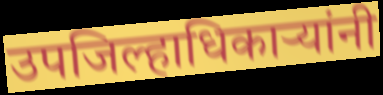
उपजिल्हाधिकाऱ्यांनी